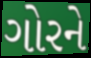
ગોરને